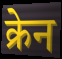
क्रेन